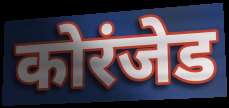
कोरंजेड